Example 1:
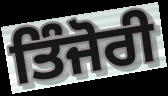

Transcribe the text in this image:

ਤਿੰਜੋਰੀ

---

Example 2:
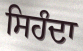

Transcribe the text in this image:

ਸਿਹੰਦਾ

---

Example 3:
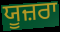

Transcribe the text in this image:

ਯੂਜ਼ਰਾ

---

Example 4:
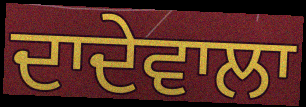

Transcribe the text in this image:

ਦਾਦੇਵਾਲਾ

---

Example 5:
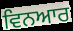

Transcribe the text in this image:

ਵਿਨਆਰ